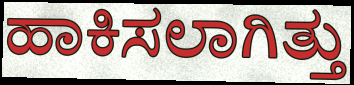
ಹಾಕಿಸಲಾಗಿತ್ತು